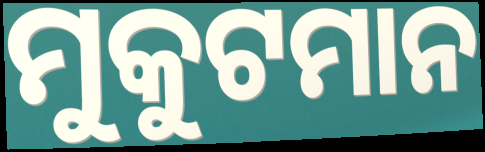
ମୁକୁଟମାନ